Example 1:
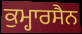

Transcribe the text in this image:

ਕੁਮ੍ਹਾਰਸੈਨ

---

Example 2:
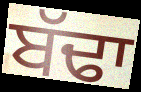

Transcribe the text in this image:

ਬੱਢਾ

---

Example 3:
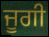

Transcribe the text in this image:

ਜੂਗੀ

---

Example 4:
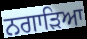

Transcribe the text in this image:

ਨਗਾੜਿਆ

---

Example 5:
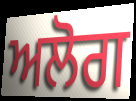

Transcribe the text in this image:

ਅਲੋਗ